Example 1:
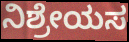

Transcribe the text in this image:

ನಿಶ್ರೇಯಸ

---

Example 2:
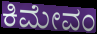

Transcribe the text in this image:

ಕಿಮೇವಂ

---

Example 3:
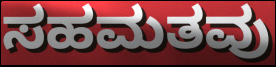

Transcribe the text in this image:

ಸಹಮತವು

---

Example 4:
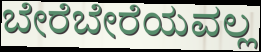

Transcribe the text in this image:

ಬೇರೆಬೇರೆಯವಲ್ಲ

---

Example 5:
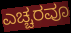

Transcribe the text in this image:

ಎಚ್ಚರವೂ